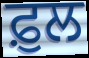
ਫ਼ੁਲ